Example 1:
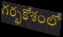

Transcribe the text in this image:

గర్భకోశంలో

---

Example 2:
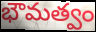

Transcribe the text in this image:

భౌమత్వం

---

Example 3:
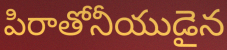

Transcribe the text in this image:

పిరాతోనీయుడైన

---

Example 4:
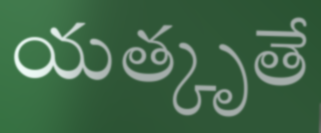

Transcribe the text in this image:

యత్కృతే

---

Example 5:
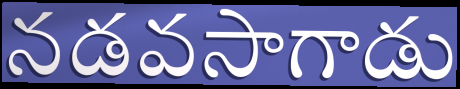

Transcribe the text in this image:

నడవసాగాడు